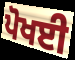
ਪੋਖਈ